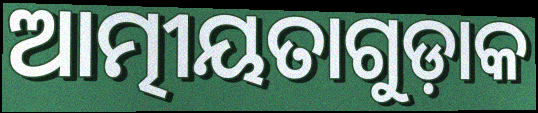
ଆତ୍ମୀୟତାଗୁଡ଼ାକ